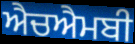
ਐਚਐਮਬੀ